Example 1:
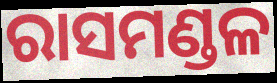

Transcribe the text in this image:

ରାସମଣ୍ଡଳ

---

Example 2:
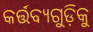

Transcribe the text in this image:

କର୍ତ୍ତବ୍ୟଗୁଡ଼ିକୁ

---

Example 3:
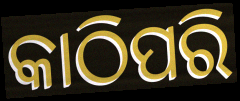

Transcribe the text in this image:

କାଠିପରି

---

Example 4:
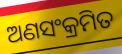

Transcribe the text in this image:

ଅଣସଂକ୍ରମିତ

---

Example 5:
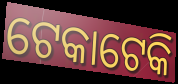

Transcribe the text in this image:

ଟେକାଟେକି